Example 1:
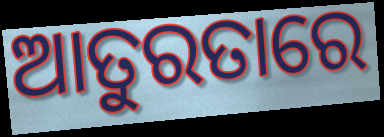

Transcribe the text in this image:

ଆତୁରତାରେ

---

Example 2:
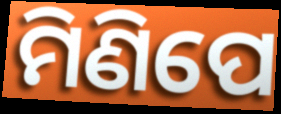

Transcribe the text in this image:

ମିଣିପେ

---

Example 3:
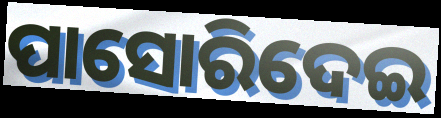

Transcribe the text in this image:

ପାସୋରିଦେଇ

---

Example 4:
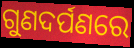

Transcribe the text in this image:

ଗୁଣଦର୍ପଣରେ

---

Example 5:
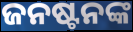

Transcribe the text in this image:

ଜନଷ୍ଟନଙ୍କ